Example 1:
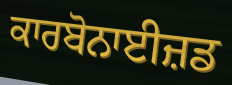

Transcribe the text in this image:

ਕਾਰਬੋਨਾਈਜ਼ਡ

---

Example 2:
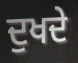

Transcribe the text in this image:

ਦੁਖਦੇ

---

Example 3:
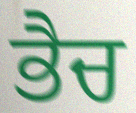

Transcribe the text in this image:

ਭੈਚ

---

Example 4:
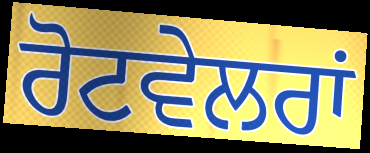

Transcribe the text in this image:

ਰੋਟਵੇਲਰਾਂ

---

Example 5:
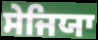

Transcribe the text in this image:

ਸੇਜਿਯਾ